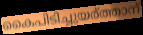
കൈപിടിച്ചുയര്ത്താന്